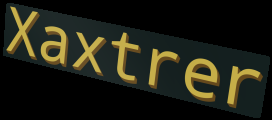
Xaxtrer